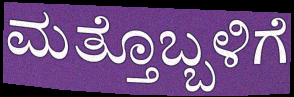
ಮತ್ತೊಬ್ಬಳಿಗೆ